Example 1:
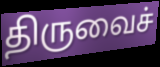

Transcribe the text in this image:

திருவைச்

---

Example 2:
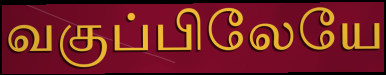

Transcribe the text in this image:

வகுப்பிலேயே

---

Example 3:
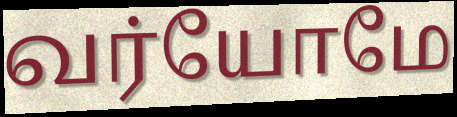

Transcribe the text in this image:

வர்யோமே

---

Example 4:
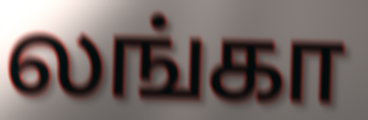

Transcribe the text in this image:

லங்கா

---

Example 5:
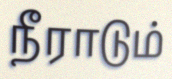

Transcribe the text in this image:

நீராடும்